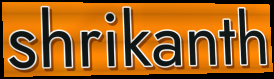
shrikanth